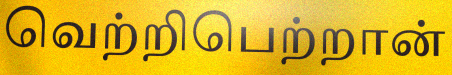
வெற்றிபெற்றான்